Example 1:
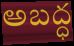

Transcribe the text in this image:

అబద్ధ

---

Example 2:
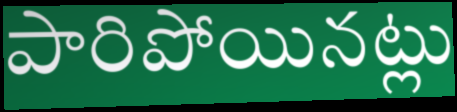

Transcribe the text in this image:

పారిపోయినట్లు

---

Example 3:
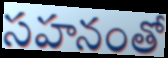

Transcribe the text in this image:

సహనంతో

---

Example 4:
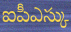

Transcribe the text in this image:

ఐపీఎస్కు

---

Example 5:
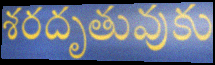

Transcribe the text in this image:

శరదృతువుకు